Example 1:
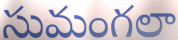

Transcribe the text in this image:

సుమంగలా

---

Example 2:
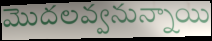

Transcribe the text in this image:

మొదలవ్వనున్నాయి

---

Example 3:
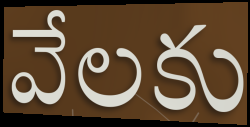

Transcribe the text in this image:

వేలకు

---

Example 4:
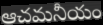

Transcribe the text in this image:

ఆచమనీయం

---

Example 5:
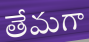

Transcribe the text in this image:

తేమగా